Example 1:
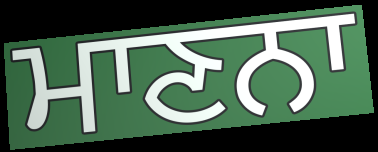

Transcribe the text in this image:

ਮਾਣਨਾ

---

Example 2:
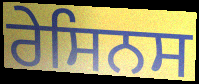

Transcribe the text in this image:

ਰੇਸਿਨਸ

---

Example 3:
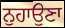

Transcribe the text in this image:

ਨੁਹਾਉਣਾ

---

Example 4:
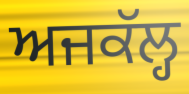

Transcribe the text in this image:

ਅਜਕੱਲ੍ਹ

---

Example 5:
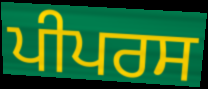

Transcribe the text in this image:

ਪੀਪਰਸ